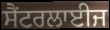
ਸੈਂਟਰਲਾਈਜ